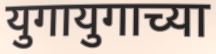
युगायुगाच्या